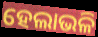
ହେଲାଭଳି